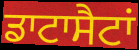
ਡਾਟਾਸੈਟਾਂ